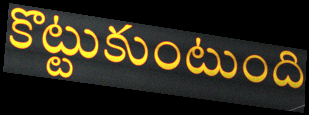
కొట్టుకుంటుంది